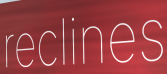
reclines